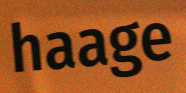
haage